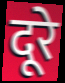
दूरे